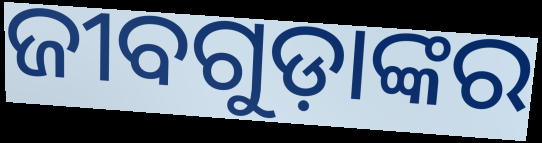
ଜୀବଗୁଡ଼ାଙ୍କର